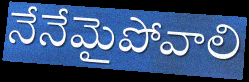
నేనేమైపోవాలి